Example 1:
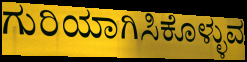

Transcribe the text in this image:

ಗುರಿಯಾಗಿಸಿಕೊಳ್ಳುವ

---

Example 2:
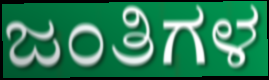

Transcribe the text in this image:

ಜಂತಿಗಳ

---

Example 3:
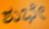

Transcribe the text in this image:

ಶುಭೇ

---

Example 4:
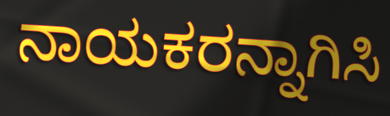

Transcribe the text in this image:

ನಾಯಕರನ್ನಾಗಿಸಿ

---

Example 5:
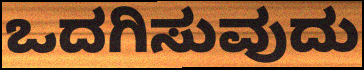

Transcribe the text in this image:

ಒದಗಿಸುವುದು